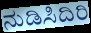
ನುಡಿಸಿದಿರಿ